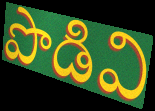
పొడివి